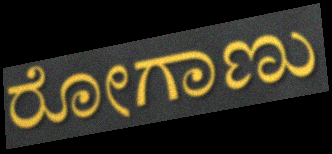
ರೋಗಾಣು